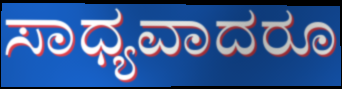
ಸಾಧ್ಯವಾದರೂ